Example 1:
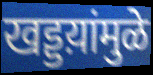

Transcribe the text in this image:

खड्डय़ांमुळे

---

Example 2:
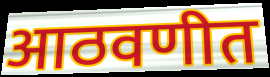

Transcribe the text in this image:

आठवणीत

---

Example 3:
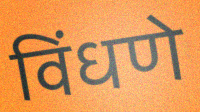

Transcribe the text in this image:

विंधणे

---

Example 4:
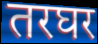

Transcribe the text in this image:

तरघर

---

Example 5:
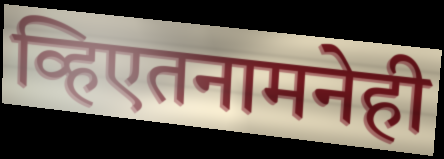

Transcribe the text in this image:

व्हिएतनामनेही